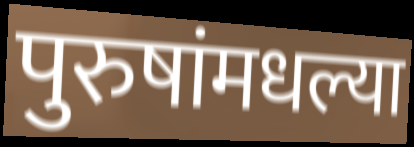
पुरुषांमधल्या